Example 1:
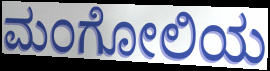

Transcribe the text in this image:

ಮಂಗೋಲಿಯ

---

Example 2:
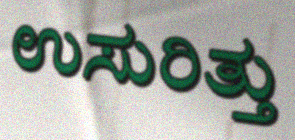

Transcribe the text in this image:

ಉಸುರಿತ್ತು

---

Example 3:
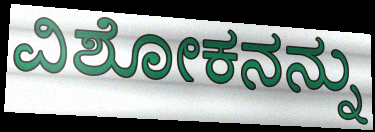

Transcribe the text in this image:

ವಿಶೋಕನನ್ನು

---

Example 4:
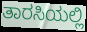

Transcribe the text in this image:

ತಾರಸಿಯಲ್ಲಿ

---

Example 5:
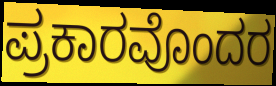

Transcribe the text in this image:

ಪ್ರಕಾರವೊಂದರ